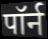
पॉर्न